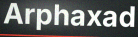
Arphaxad